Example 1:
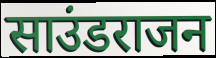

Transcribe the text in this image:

साउंडराजन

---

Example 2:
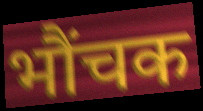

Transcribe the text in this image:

भौंचक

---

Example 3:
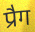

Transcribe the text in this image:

प्रैग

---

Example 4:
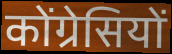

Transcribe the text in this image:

कोंग्रेसियों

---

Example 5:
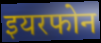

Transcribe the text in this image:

इयरफोन